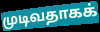
முடிவதாகக்